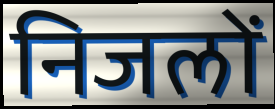
निजलों